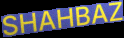
SHAHBAZ